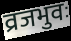
व्रजभुवः